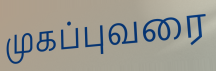
முகப்புவரை